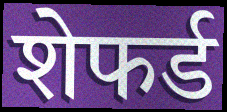
शेफर्ड